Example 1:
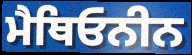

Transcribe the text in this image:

ਮੈਥਿਓਨੀਨ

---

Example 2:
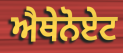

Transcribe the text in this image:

ਐਥੇਨੋਏਟ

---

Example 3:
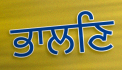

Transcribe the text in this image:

ਭਾਲਣਿ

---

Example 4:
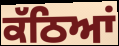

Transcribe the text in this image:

ਕੱਠਿਆਂ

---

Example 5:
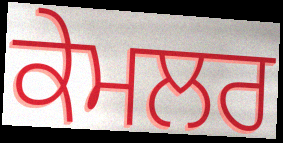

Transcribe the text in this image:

ਕੇਮਲਰ